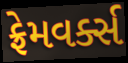
ફ્રેમવર્ક્સ